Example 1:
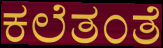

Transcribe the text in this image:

ಕಲೆತಂತೆ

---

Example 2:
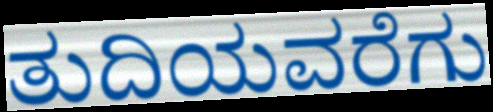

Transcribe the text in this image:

ತುದಿಯವರೆಗು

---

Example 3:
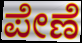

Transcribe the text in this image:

ಪೇಣೆ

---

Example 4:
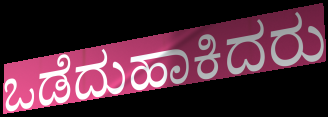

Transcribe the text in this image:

ಒಡೆದುಹಾಕಿದರು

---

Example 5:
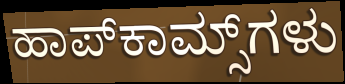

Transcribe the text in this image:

ಹಾಪ್‌ಕಾಮ್ಸ್‌ಗಳು